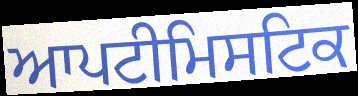
ਆਪਟੀਮਿਸਟਿਕ